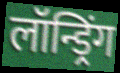
लॉन्ड्रिंग